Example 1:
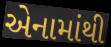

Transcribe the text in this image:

એનામાંથી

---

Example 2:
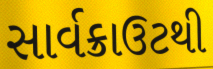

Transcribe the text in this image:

સાર્વક્રાઉટથી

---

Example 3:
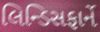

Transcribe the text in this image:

લિન્ડિસફાર્ને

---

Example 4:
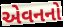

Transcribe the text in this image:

એવનનો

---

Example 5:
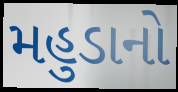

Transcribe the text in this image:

મહુડાનો